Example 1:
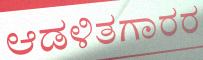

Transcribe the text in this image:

ಆಡಳಿತಗಾರರ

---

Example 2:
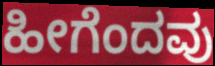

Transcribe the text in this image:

ಹೀಗೆಂದವು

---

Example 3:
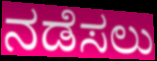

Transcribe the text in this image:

ನಡೆಸಲು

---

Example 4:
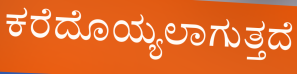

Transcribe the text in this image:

ಕರೆದೊಯ್ಯಲಾಗುತ್ತದೆ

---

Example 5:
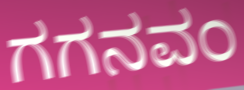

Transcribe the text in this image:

ಗಗನವಂ